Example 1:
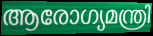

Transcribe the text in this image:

ആരോഗ്യമന്ത്രി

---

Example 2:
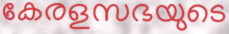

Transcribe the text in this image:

കേരളസഭയുടെ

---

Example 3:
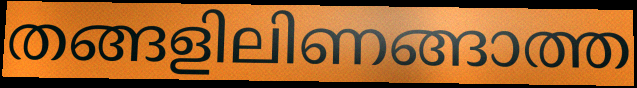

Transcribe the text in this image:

തങ്ങളിലിണങ്ങാത്ത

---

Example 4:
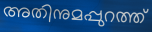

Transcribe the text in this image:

അതിനുമപ്പുറത്ത്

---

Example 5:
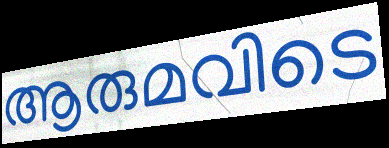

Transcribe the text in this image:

ആരുമവിടെ